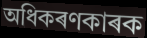
অধিকৰণকাৰক